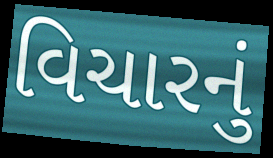
વિચારનું